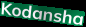
Kodansha